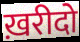
ख़रीदो